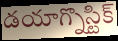
డయాగ్నొస్టిక్